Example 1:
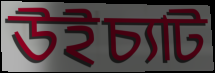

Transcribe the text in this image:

উইচ্যাট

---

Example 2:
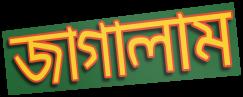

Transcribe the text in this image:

জাগালাম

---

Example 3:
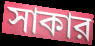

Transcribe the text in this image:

সাকার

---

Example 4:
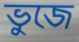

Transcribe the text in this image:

ভুজে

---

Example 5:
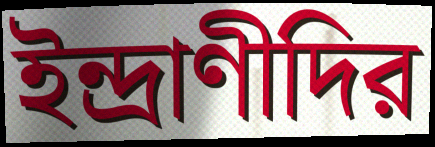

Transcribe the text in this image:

ইন্দ্রাণীদির